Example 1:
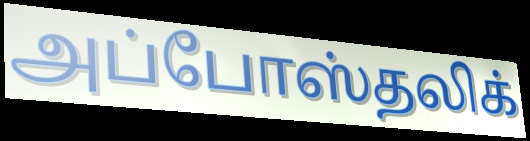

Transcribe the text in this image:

அப்போஸ்தலிக்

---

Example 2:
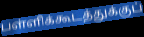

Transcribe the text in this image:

பள்ளிக்கூடத்துக்குப்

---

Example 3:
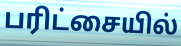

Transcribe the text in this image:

பரிட்சையில்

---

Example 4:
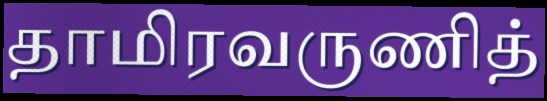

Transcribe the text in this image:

தாமிரவருணித்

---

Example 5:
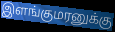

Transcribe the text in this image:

இளங்குமரனுக்கு